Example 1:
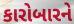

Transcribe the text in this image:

કારોબારને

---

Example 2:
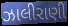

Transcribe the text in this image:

ઝાલીરાણી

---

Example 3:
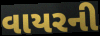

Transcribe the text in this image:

વાયરની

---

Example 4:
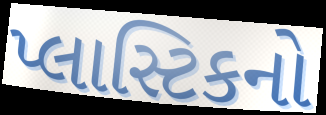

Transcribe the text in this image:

પ્લાસ્ટિકનો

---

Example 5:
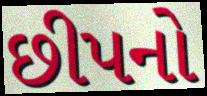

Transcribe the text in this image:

છીપનો